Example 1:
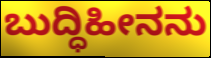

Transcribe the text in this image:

ಬುದ್ಧಿಹೀನನು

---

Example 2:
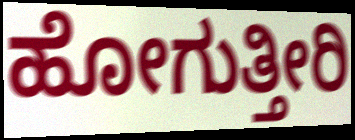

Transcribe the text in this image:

ಹೋಗುತ್ತೀರಿ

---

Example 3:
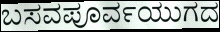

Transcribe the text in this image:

ಬಸವಪೂರ್ವಯುಗದ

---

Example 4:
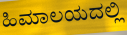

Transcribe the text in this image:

ಹಿಮಾಲಯದಲ್ಲಿ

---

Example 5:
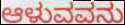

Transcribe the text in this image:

ಆಳುವವನು